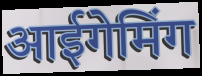
आईगेमिंग